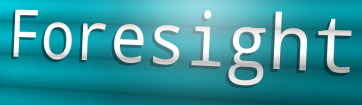
Foresight